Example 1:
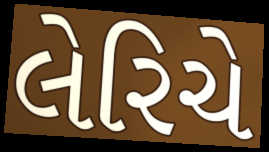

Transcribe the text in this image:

લેરિચે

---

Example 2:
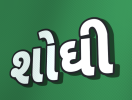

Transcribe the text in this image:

શોઘી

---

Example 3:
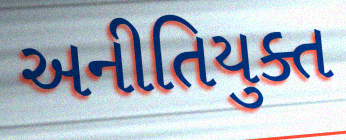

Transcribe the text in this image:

અનીતિયુક્ત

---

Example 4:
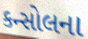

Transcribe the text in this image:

કન્સોલના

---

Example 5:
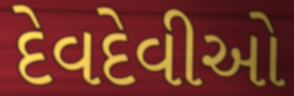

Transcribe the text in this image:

દેવદેવીઓ